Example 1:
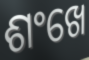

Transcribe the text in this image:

ଶଂଖେ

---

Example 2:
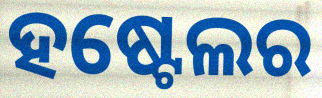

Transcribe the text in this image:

ହଷ୍ଟେଲର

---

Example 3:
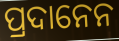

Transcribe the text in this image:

ପ୍ରଦାନେନ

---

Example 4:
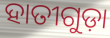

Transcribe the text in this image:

ହାତୀଗୁଡ଼ା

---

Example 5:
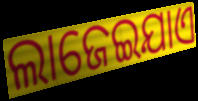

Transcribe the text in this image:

ଲାଜେଇଯାଏ